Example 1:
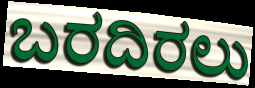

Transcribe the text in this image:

ಬರದಿರಲು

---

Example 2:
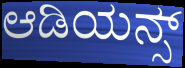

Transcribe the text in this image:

ಆಡಿಯನ್ಸ್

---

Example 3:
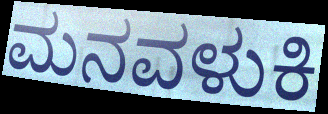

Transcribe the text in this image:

ಮನವಳುಕಿ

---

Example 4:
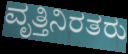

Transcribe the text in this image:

ವೃತ್ತಿನಿರತರು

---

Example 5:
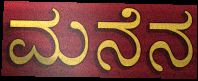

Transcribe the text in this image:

ಮನೆನ